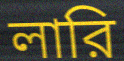
লারি